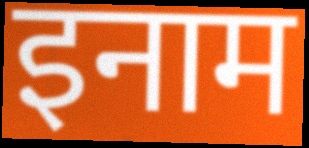
इनाम